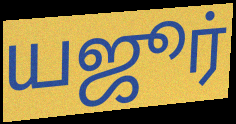
யஜூர்